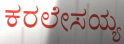
ಕರಲೇಸಯ್ಯ